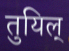
तुयिल्